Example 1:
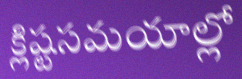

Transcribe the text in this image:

క్లిష్టసమయాల్లో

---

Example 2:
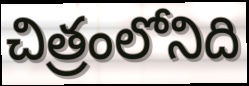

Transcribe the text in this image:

చిత్రంలోనిది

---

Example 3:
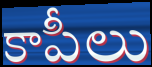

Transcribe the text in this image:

కాపీలు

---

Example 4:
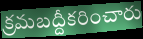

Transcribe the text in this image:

క్రమబద్దీకరించారు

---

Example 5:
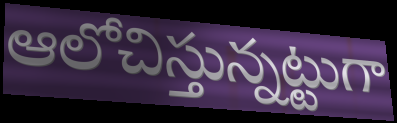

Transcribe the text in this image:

ఆలోచిస్తున్నట్టుగా